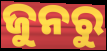
ଜୁନରୁ